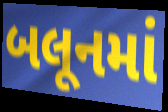
બલૂનમાં